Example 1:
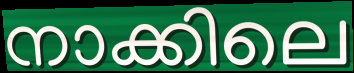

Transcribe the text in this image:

നാക്കിലെ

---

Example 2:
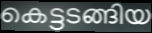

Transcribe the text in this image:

കെട്ടടങ്ങിയ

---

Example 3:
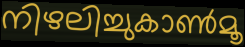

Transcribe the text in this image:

നിഴലിച്ചുകാൺമൂ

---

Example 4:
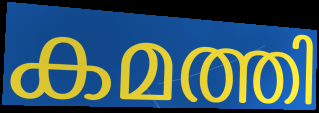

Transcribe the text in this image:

കമത്തി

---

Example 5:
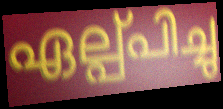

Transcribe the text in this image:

ഏല്പ്പിച്ചു